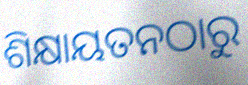
ଶିକ୍ଷାୟତନଠାରୁ